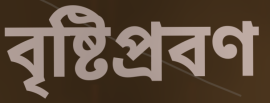
বৃষ্টিপ্রবণ